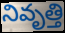
నివృత్తి